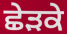
ਛੇੜਕੇ